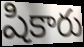
షికారు